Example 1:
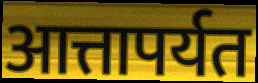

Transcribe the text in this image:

आत्तापर्यत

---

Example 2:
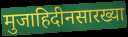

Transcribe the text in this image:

मुजाहिदीनसारख्या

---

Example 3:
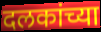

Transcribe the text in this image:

दलकांच्या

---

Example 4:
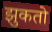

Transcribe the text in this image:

झुकतो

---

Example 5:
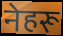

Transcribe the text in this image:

नेहरू